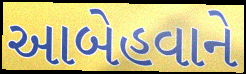
આબેહવાને